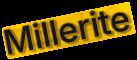
Millerite